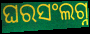
ଘରସଂଲଗ୍ନ